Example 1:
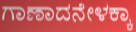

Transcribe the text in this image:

ಗಾಣಾದನೇಳಕ್ಕಾ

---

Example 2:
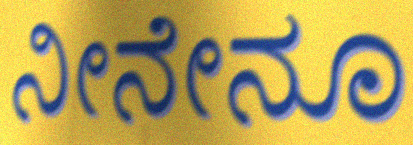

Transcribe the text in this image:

ನೀನೇನೂ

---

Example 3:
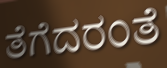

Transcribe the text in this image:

ತೆಗೆದರಂತೆ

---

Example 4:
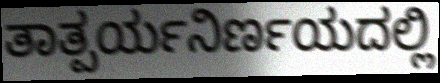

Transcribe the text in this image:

ತಾತ್ಪರ್ಯನಿರ್ಣಯದಲ್ಲಿ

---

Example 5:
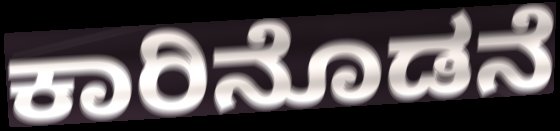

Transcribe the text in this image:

ಕಾರಿನೊಡನೆ